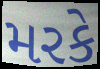
મરકે